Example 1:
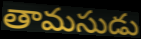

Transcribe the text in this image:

తామసుడు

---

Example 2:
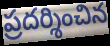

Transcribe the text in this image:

ప్రదర్శించిన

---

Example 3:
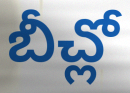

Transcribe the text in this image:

బీచ్లో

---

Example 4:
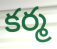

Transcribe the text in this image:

కర్మ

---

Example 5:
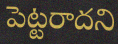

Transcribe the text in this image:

పెట్టరాదని